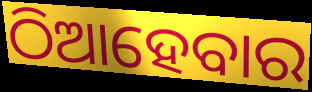
ଠିଆହେବାର